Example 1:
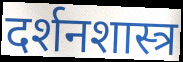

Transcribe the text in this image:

दर्शनशास्त्र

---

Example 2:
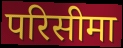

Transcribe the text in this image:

परिसीमा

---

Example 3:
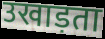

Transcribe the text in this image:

उखाड़ता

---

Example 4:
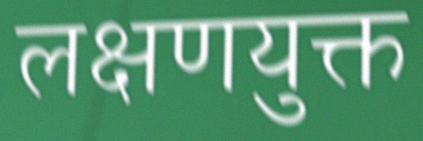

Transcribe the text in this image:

लक्षणयुक्त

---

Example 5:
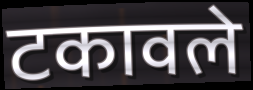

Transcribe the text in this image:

टकावले